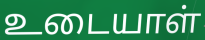
உடையாள்